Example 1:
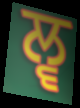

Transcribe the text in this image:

ਲ੍ਵ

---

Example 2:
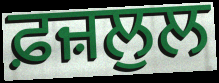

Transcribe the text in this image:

ਫ਼ਜ਼ਲੁਲ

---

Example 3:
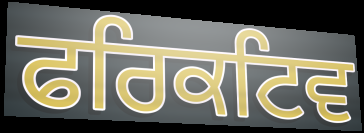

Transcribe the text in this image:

ਫਰਿਕਟਿਵ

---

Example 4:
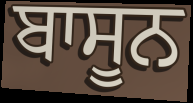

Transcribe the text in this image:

ਬਾਸੂਨ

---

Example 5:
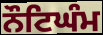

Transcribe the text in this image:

ਨੌਟਿਘੰਮ